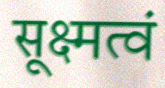
सूक्ष्मत्वं